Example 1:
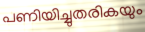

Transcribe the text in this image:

പണിയിച്ചുതരികയും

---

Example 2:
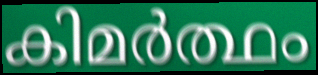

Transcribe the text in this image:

കിമർത്ഥം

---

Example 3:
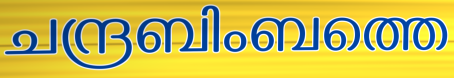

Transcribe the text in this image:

ചന്ദ്രബിംബത്തെ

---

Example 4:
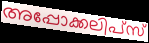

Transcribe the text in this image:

അപ്പോക്കലിപ്സ്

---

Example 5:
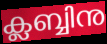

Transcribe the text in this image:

ക്ലബ്ബിനു